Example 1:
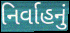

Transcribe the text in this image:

નિર્વાહનું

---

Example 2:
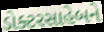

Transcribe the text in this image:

ડોક્ટરસાહેબને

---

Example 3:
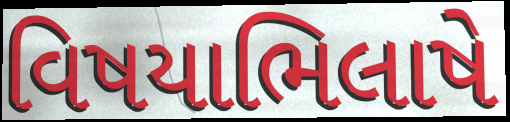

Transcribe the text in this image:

વિષયાભિલાષે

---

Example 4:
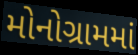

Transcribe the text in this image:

મોનોગ્રામમાં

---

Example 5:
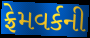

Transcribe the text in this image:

ફ્રેમવર્કની